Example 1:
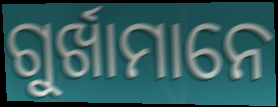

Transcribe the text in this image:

ଗୁର୍ଖାମାନେ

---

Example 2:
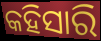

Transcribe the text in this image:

କହିସାରି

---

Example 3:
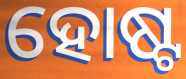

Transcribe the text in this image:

ହୋଷ୍ଟ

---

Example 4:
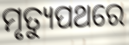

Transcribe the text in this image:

ମୃତ୍ୟୁପଥରେ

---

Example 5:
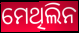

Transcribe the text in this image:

ମେଥିଲିନ